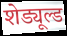
शेड्यूल्ड